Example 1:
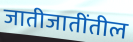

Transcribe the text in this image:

जातीजातींतील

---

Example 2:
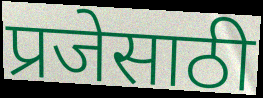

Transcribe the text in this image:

प्रजेसाठी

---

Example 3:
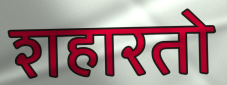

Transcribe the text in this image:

शहारतो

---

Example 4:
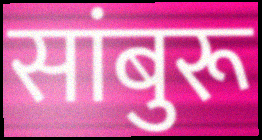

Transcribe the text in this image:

सांबुरू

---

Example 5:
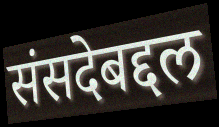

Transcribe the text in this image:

संसदेबद्दल